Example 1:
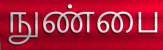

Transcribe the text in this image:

நுண்பை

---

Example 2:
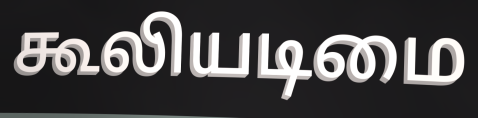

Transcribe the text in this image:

கூலியடிமை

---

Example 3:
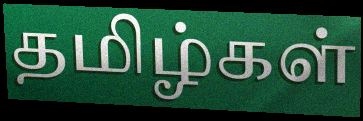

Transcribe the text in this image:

தமிழ்கள்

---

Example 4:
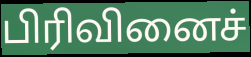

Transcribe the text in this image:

பிரிவினைச்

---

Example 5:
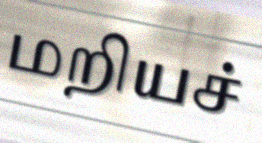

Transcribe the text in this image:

மறியச்